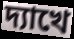
দ্যাখে